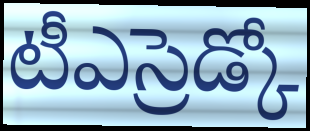
టీఎస్రెడ్కో